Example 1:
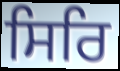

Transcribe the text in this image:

ਸਿਰਿ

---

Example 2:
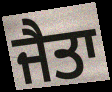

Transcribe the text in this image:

ਜੈਤਾ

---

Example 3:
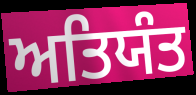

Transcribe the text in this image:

ਅਤਿਯੰਤ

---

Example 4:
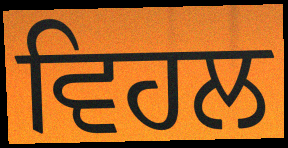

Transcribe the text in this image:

ਵਿਹਲ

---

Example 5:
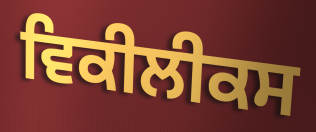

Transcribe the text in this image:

ਵਿਕੀਲੀਕਸ